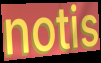
notis